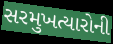
સરમુખત્યારોની